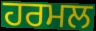
ਹਰਮਲ